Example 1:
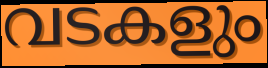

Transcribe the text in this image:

വടകളും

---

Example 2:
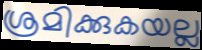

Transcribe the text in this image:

ശ്രമിക്കുകയല്ല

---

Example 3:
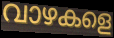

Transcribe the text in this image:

വാഴകളെ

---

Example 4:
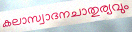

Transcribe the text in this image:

കലാസ്വാദനചാതുര്യവും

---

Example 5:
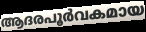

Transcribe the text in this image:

ആദരപൂർവകമായ